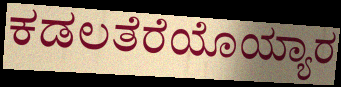
ಕಡಲತೆರೆಯೊಯ್ಯಾರ